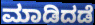
ಮಾಡಿದಡೆ